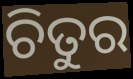
ଚିତୁର